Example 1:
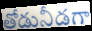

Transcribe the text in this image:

తోడునీడగా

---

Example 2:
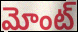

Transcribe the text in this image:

మోంట్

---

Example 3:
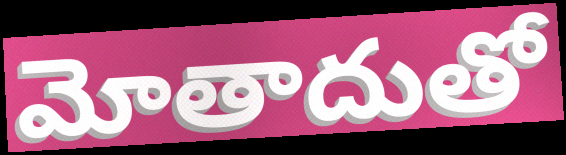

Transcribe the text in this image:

మోతాదుతో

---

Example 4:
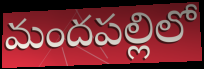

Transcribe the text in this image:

మందపల్లిలో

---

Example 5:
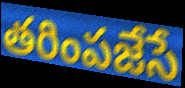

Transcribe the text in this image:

తరింపజేసే